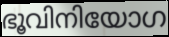
ഭൂവിനിയോഗ